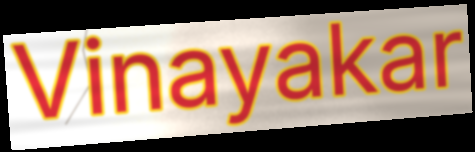
Vinayakar